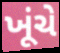
ખૂંચે